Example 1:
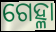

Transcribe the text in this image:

ଗେହ୍ଳା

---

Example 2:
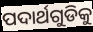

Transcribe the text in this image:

ପଦାର୍ଥଗୁଡିକୁ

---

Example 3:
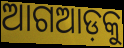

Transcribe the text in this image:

ଆଗଆଡ଼କୁ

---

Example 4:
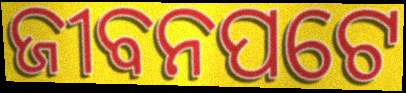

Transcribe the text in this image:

ଜୀବନପଟେ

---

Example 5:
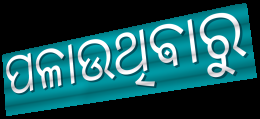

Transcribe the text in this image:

ପଳାଉଥିଵାରୁ